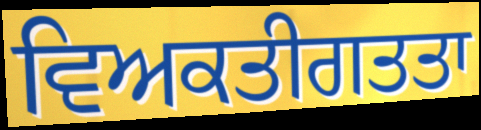
ਵਿਅਕਤੀਗਤਤਾ